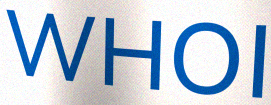
WHOI